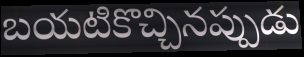
బయటికొచ్చినప్పుడు